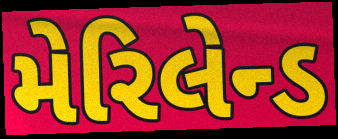
મેરિલેન્ડ